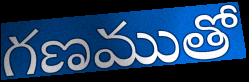
గణముతో